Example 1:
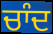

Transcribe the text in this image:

ਚਾੰਦ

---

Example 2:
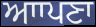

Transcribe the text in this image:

ਆਾਪਣਾ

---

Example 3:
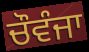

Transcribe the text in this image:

ਚੌਵੰਜਾ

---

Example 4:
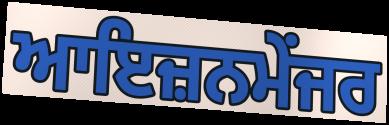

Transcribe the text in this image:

ਆਇਜ਼ਨਮੇਂਜਰ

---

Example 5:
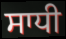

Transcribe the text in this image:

ਸਾਧੀ